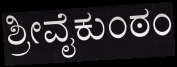
ಶ್ರೀವೈಕುಂಠಂ